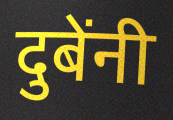
दुबेंनी